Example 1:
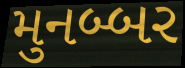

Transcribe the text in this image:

મુનબ્બર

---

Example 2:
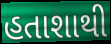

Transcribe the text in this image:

હતાશાથી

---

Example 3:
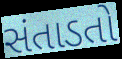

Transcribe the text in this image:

સંતાડતો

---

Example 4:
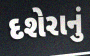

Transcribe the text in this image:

દશેરાનું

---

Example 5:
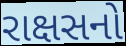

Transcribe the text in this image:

રાક્ષસનો